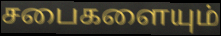
சபைகளையும்